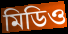
মিডিও